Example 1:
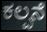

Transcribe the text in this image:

ಕಲ್ಪನೆ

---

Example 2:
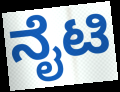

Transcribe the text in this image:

ನೈಟಿ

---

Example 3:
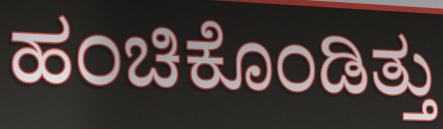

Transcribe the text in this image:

ಹಂಚಿಕೊಂಡಿತ್ತು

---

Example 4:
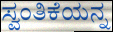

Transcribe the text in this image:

ಸ್ವಂತಿಕೆಯನ್ನ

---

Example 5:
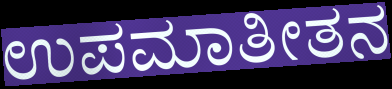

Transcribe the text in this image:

ಉಪಮಾತೀತನ